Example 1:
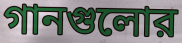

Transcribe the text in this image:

গানগুলোর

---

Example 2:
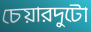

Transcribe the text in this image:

চেয়ারদুটো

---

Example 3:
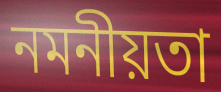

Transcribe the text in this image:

নমনীয়তা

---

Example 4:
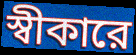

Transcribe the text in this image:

স্বীকারে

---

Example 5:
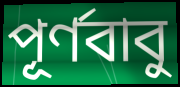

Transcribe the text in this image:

পূর্ণবাবু